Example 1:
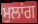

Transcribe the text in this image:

ਮੁਲਾਂਗ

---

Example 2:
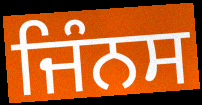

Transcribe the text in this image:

ਜਿੰਨਸ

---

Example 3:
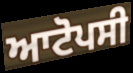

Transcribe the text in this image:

ਆਟੋਪਸੀ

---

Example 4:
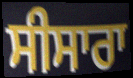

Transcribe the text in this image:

ਸੀਸਾਰਾ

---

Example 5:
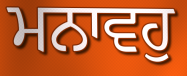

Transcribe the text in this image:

ਮਨਾਵਹੁ